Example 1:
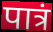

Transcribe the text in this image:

पात्रं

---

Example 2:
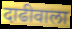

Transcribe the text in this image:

दाढीवाला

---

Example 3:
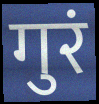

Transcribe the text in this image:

गुरं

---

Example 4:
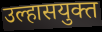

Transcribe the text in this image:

उल्हासयुक्त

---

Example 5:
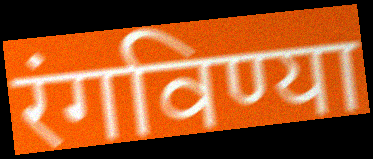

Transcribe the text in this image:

रंगविण्या